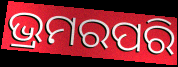
ଭ୍ରମରପରି